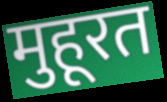
मुहूरत